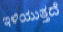
ಇಳಿಯುತ್ತದೆ